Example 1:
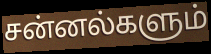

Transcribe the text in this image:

சன்னல்களும்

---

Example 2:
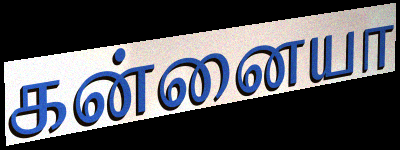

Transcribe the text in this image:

கன்னையா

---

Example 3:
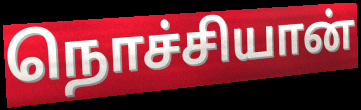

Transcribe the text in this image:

நொச்சியான்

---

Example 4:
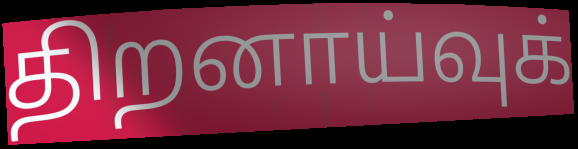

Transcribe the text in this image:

திறனாய்வுக்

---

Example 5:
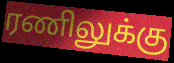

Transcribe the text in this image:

ரணிலுக்கு